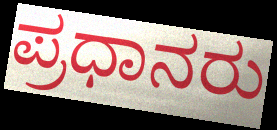
ಪ್ರಧಾನರು